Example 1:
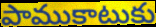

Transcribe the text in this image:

పాముకాటుకు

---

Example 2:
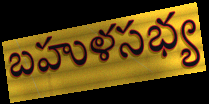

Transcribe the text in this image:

బహుళసభ్య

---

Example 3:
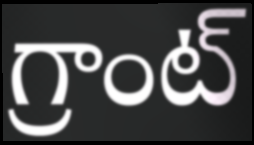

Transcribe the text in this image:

గ్రాంట్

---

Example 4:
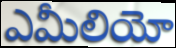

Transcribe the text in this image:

ఎమీలియో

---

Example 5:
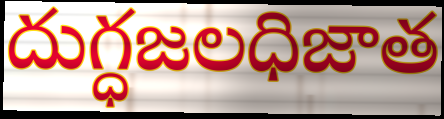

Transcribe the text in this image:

దుగ్ధజలధిజాత